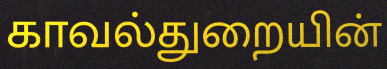
காவல்துறையின்